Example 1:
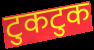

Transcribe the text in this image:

टुकटुक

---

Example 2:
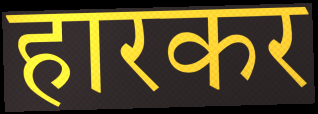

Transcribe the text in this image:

हारकर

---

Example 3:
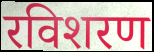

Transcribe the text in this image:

रविशरण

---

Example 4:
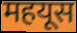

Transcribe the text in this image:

महयूस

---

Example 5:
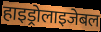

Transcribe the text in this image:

हाइड्रोलाइजेबल